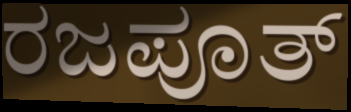
ರಜಪೂತ್